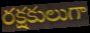
రక్షకులుగా